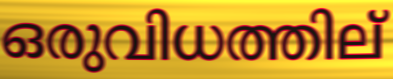
ഒരുവിധത്തില്